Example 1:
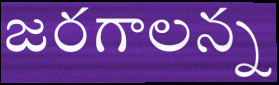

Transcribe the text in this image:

జరగాలన్న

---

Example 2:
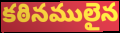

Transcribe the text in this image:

కఠినములైన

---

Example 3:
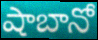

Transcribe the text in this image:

షాబానో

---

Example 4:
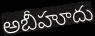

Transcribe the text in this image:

అబీహూదు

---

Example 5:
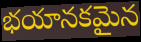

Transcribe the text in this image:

భయానకమైన